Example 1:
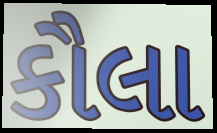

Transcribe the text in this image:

કૌલા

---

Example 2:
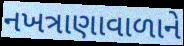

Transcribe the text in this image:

નખત્રાણાવાળાને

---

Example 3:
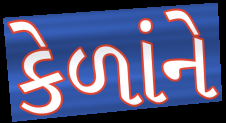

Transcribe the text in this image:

કેળાંને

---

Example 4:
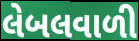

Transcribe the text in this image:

લેબલવાળી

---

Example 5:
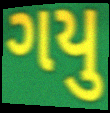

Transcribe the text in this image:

ગયુ